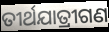
ତୀର୍ଥଯାତ୍ରୀଗଣ